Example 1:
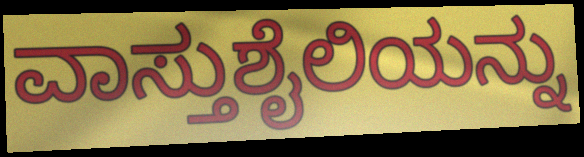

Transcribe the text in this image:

ವಾಸ್ತುಶೈಲಿಯನ್ನು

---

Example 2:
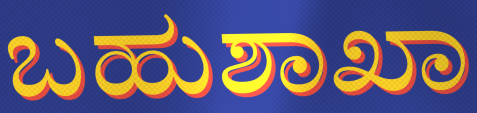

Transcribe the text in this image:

ಬಹುಶಾಖಾ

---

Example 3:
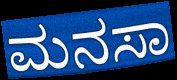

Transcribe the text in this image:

ಮನಸಾ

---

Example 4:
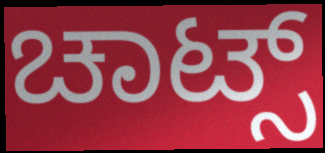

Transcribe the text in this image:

ಚಾಟ್ಸ್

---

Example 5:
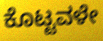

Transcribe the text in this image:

ಕೊಟ್ಟವಳೇ